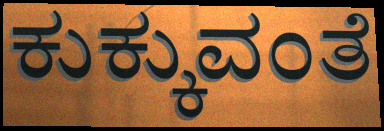
ಕುಕ್ಕುವಂತೆ